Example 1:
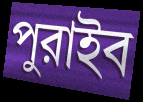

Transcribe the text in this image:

পুরাইব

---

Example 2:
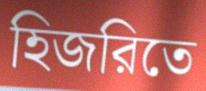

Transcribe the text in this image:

হিজরিতে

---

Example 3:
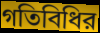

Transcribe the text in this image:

গতিবিধির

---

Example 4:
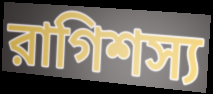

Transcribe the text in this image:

রাগিশস্য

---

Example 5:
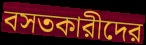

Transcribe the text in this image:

বসতকারীদের